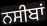
ਨਸੀਬਾਂ